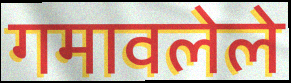
गमावलेले